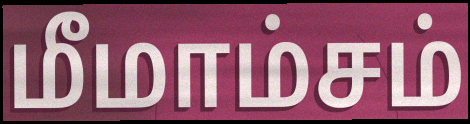
மீமாம்சம்